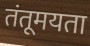
तंतूमयता